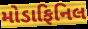
મોડાફિનિલ